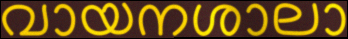
വായനശാലാ